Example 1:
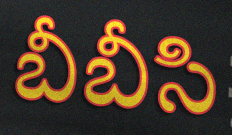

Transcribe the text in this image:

బీబీసి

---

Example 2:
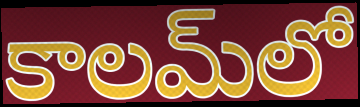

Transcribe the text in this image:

కాలమ్‍లో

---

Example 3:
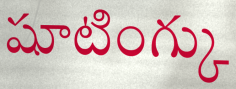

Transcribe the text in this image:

షూటింగ్కు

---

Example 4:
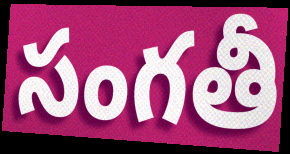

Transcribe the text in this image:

సంగతీ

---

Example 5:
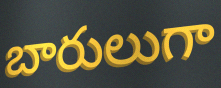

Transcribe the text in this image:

బారులుగా